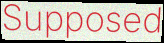
Supposed